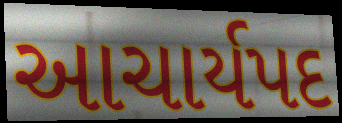
આચાર્યપદ